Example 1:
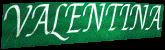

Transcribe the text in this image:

VALENTINA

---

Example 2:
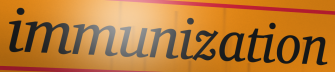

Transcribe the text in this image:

immunization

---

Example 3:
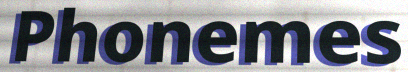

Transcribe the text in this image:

Phonemes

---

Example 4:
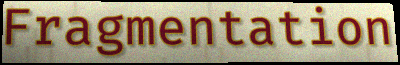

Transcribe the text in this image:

Fragmentation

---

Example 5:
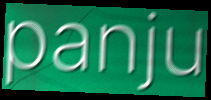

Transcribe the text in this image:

panju